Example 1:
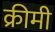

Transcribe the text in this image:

क्रीमी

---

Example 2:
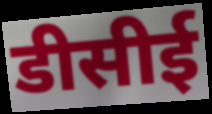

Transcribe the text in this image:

डीसीई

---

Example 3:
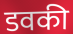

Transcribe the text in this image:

डवकी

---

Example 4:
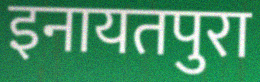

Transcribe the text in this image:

इनायतपुरा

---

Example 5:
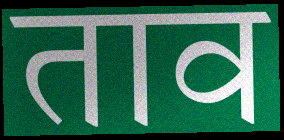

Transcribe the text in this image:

ताव